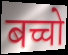
बच्चो